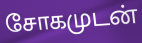
சோகமுடன்